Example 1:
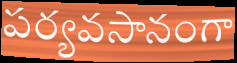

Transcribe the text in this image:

పర్యవసానంగా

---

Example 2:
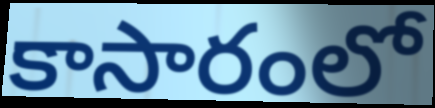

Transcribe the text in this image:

కాసారంలో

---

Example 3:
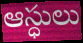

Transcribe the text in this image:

ఆస్ధులు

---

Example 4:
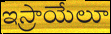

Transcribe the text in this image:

ఇస్రాయేలూ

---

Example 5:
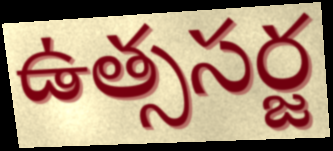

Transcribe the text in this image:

ఉత్ససర్జ